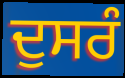
ਦੁਸਰੰ